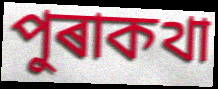
পুৰাকথা